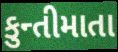
કુન્તીમાતા